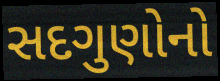
સદગુણોનો